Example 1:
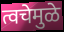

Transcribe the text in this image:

त्वचेमुळे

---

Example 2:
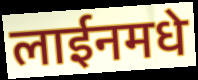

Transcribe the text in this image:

लाईनमधे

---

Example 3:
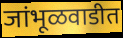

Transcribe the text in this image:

जांभूळवाडीत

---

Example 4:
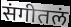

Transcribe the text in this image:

संगीतलं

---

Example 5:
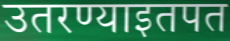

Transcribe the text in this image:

उतरण्याइतपत